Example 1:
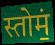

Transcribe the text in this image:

स्तोमं॒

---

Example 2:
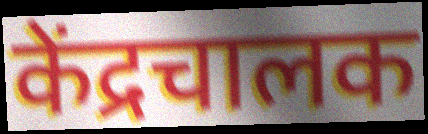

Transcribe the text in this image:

केंद्रचालक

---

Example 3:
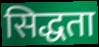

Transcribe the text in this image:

सिद्धता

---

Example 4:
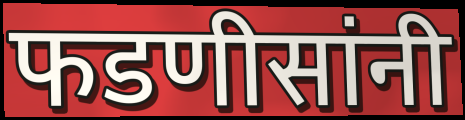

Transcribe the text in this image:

फडणीसांनी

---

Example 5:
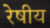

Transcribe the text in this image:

रेषीय